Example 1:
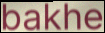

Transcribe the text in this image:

bakhe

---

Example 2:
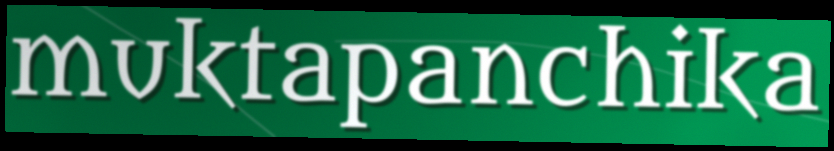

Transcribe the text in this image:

muktapanchika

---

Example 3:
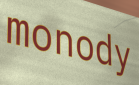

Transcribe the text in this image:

monody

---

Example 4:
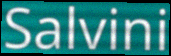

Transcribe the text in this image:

Salvini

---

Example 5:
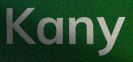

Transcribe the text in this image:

Kany